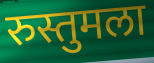
रुस्तुमला